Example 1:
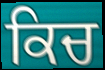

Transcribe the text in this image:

ਕਿਚ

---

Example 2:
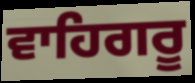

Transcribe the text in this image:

ਵਾਹਿਗਰੂ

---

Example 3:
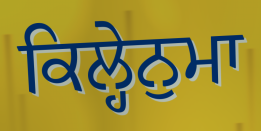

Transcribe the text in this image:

ਕਿਲ੍ਹੇਨੁਮਾ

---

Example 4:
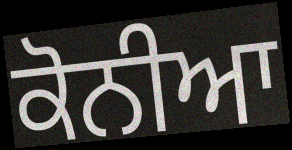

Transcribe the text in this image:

ਕੋਨੀਆ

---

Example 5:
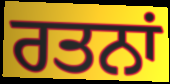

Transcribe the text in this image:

ਰਤਨਾਂ